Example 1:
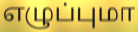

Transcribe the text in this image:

எழுப்புமா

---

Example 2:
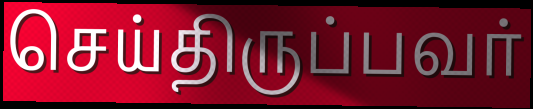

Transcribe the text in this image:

செய்திருப்பவர்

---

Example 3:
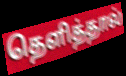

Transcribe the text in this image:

தெளித்தால்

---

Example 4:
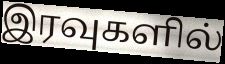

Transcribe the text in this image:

இரவுகளில்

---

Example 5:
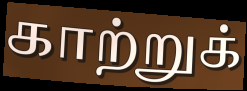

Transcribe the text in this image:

காற்றுக்